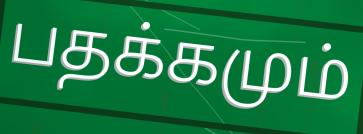
பதக்கமும்